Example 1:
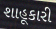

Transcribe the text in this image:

શાહૂકારી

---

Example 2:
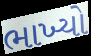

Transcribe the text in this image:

ભાખ્યો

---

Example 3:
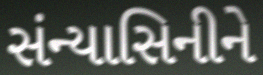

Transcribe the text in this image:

સંન્યાસિનીને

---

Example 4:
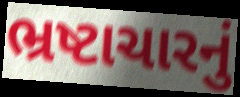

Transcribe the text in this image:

ભ્રષ્ટાચારનું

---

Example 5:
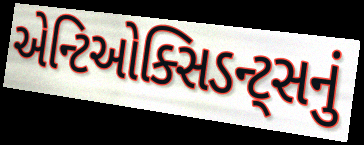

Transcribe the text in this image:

એન્ટિઓક્સિડન્ટ્સનું